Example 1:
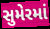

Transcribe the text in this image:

સુમેરમાં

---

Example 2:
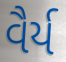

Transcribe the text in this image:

વૈર્ય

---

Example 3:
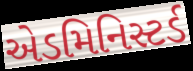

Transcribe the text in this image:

એડમિનિસ્ટર્ડ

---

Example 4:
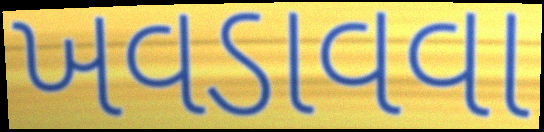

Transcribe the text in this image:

ખવડાવવા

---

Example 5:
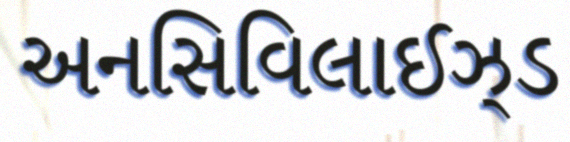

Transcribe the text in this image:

અનસિવિલાઈઝ્ડ